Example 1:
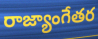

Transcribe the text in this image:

రాజ్యాంగేతర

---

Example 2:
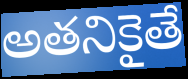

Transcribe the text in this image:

అతనికైతే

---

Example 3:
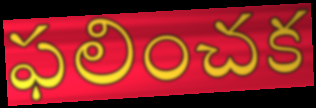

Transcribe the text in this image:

ఫలించక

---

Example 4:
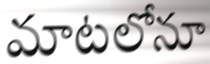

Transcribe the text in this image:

మాటలోనూ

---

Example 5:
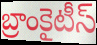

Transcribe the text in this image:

బ్రాంకైటీస్